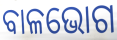
ବାଳଭୋଗ